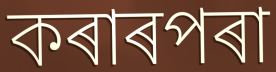
কৰাৰপৰা